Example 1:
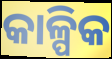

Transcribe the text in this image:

କାଳ୍ପିକ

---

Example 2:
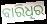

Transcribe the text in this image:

ବାରିଧିର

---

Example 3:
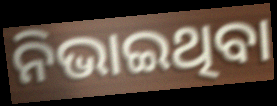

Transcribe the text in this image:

ନିଭାଇଥିବା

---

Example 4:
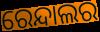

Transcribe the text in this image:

ରେନ୍ଦାଲର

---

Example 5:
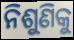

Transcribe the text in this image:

ନିଶୁଣିକୁ